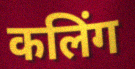
कलिंग